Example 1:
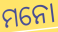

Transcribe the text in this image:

ମନୋ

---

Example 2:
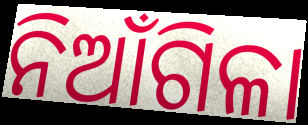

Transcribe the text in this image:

ନିଆଁଗିଳା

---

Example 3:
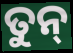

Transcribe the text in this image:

ତୁନ୍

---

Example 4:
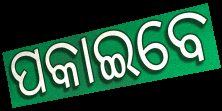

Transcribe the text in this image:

ପକାଇବେ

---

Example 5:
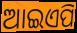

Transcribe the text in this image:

ଆଇଏପି